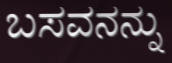
ಬಸವನನ್ನು